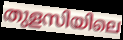
തുളസിയിലെ